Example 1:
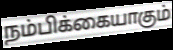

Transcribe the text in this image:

நம்பிக்கையாகும்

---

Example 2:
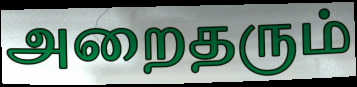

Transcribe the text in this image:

அறைதரும்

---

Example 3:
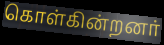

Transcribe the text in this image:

கொள்கின்றனர்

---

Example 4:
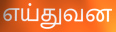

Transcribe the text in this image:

எய்துவன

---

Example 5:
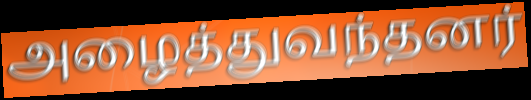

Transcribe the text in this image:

அழைத்துவந்தனர்